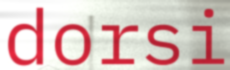
dorsi